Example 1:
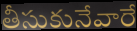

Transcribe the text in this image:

తీసుకునేవారే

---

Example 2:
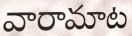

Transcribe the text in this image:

వారామాట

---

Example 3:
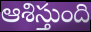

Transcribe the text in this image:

ఆశిస్తుంది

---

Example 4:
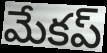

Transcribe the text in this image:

మేకప్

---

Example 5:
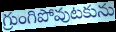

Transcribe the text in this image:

గ్రుంగిపోవుటకును